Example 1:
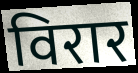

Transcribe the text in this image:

विरार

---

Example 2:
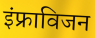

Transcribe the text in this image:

इंफ्राविजन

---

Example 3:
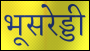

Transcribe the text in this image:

भूसरेड्डी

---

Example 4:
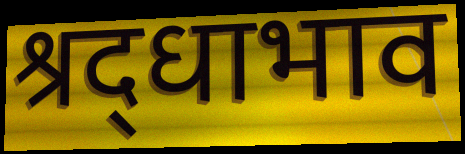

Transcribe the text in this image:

श्रद्धाभाव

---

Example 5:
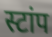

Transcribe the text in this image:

स्टांप